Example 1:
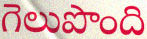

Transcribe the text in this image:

గెలుపొంది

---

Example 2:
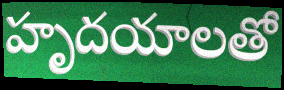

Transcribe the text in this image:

హృదయాలతో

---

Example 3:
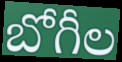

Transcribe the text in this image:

బోగీల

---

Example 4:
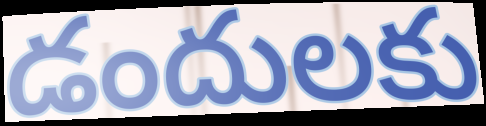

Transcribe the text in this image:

డందులకు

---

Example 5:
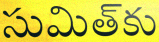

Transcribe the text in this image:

సుమిత్‌కు